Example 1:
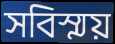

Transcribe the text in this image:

সবিস্ময়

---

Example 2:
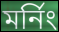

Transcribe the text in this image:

মর্নিং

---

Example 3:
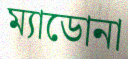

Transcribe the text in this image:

ম্যাডোনা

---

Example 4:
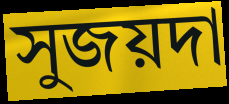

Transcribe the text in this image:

সুজয়দা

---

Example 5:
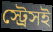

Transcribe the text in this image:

স্ট্রেসই